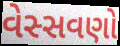
વેસ્સવણો